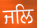
ਜਲਿ